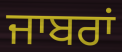
ਜਾਬਰਾਂ